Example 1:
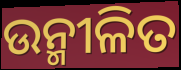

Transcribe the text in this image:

ଉନ୍ମୀଳିତ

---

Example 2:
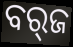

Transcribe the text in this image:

ବର୍‌ଜ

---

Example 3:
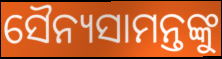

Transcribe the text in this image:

ସୈନ୍ୟସାମନ୍ତଙ୍କୁ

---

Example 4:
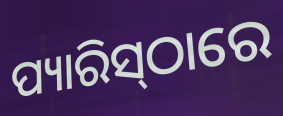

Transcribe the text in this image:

ପ୍ୟାରିସ୍‍ଠାରେ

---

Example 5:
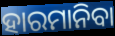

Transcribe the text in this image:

ହାରମାନିବା